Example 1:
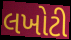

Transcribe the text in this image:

લખોટી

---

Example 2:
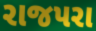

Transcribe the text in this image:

રાજપરા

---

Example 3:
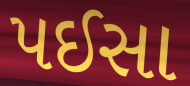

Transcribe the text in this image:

પઈસા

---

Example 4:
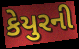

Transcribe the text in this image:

કેયુરની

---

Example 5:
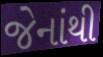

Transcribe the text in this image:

જેનાંથી